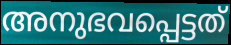
അനുഭവപ്പെട്ടത്